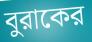
বুরাকের